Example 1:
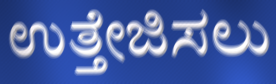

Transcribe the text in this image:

ಉತ್ತೇಜಿಸಲು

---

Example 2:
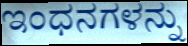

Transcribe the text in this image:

ಇಂಧನಗಳನ್ನು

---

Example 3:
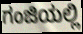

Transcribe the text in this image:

ಗಂಜಿಯಲ್ಲಿ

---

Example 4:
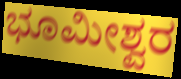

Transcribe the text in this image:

ಭೂಮೀಶ್ವರ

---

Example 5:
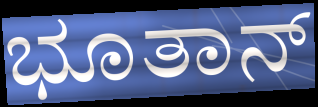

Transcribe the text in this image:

ಭೂತಾನ್